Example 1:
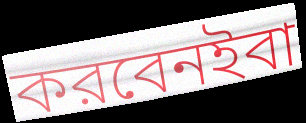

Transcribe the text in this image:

করবেনইবা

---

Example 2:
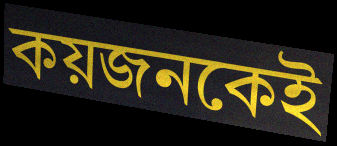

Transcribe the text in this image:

কয়জনকেই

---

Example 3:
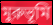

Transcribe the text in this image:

মুরুভূমি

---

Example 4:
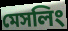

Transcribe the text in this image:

মেসলিং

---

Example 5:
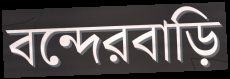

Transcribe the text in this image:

বন্দেরবাড়ি